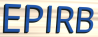
EPIRB